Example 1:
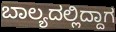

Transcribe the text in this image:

ಬಾಲ್ಯದಲ್ಲಿದ್ದಾಗ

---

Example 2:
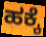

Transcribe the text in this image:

ಹಕ್ಕೆ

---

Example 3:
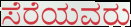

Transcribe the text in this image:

ಸೆರೆಯವರು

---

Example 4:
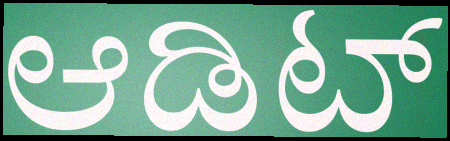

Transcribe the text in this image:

ಆಡಿಟ್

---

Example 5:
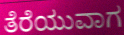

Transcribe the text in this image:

ತೆರೆಯುವಾಗ